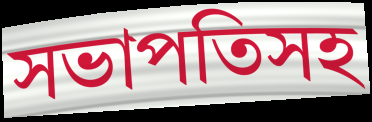
সভাপতিসহ